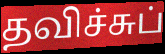
தவிச்சுப்